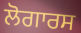
ਲੋਗਾਰਸ